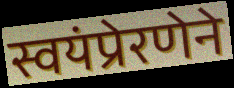
स्वयंप्रेरणेने